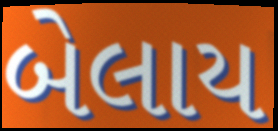
બેલાય